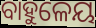
ବାହୁଳେୟ